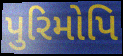
પુરિમોપિ